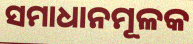
ସମାଧାନମୂଳକ